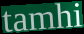
tamhi